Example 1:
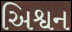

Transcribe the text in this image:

અિશ્વન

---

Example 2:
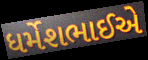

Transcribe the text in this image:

ધર્મેશભાઈએ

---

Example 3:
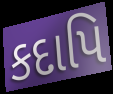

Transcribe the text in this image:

કદાપિ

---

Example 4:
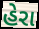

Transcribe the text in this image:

હેરા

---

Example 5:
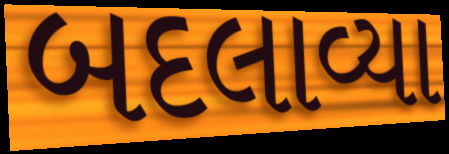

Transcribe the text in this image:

બદલાવ્યા